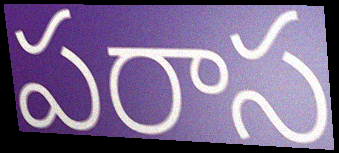
పరాస